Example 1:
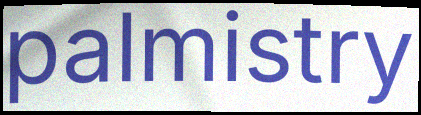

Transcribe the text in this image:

palmistry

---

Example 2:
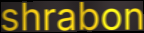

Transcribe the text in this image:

shrabon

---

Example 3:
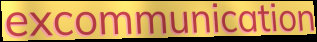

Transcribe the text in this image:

excommunication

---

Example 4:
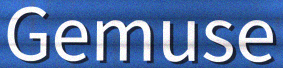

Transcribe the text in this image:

Gemuse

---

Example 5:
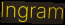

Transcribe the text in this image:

Ingram